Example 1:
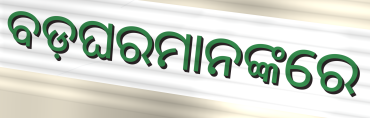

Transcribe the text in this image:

ବଡ଼ଘରମାନଙ୍କରେ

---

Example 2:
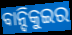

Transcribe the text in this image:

ବାନ୍ଦିକୁଇର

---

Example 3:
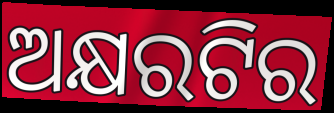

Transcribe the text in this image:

ଅକ୍ଷରଟିର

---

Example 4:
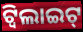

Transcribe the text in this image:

ଟ୍ୱିଲାଇଟ୍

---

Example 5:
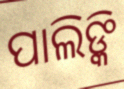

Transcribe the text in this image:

ପାଲିଙ୍କି